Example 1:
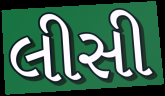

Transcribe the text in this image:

લીસી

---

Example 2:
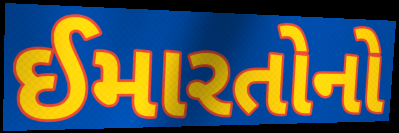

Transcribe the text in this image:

ઈમારતોનો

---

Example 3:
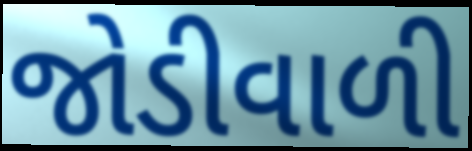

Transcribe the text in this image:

જોડીવાળી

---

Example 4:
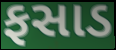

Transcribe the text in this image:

ફસાડ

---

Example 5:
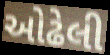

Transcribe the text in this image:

ઓઢેલી